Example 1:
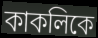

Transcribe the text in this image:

কাকলিকে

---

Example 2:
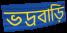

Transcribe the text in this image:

ভদ্রবাড়ি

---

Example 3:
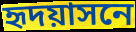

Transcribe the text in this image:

হৃদয়াসনে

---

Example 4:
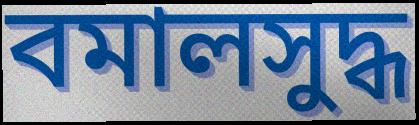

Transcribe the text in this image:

বমালসুদ্ধ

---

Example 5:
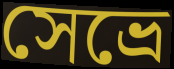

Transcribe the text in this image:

সেভ্রে